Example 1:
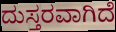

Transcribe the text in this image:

ದುಸ್ತರವಾಗಿದೆ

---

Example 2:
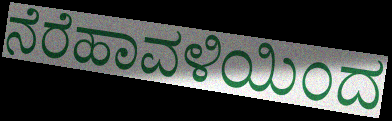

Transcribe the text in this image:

ನೆರೆಹಾವಳಿಯಿಂದ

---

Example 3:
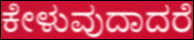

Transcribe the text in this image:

ಕೇಳುವುದಾದರೆ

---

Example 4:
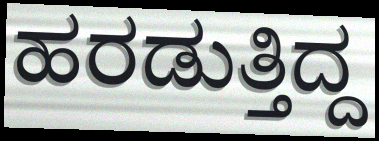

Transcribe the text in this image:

ಹರಡುತ್ತಿದ್ದ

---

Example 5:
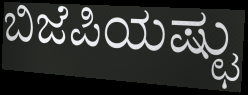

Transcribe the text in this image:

ಬಿಜೆಪಿಯಷ್ಟು